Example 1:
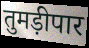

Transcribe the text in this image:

तुमड़ीपार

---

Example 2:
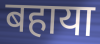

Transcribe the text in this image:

बहाया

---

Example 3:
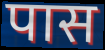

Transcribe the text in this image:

पास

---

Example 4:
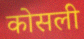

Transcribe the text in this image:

कोसली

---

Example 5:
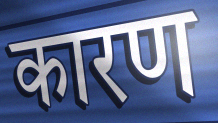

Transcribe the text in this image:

कारण